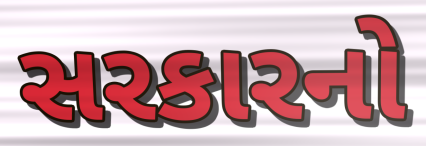
સરકારનો